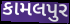
કામલપુર